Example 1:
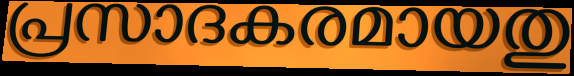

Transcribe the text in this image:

പ്രസാദകരമായതു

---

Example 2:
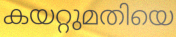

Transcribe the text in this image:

കയറ്റുമതിയെ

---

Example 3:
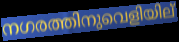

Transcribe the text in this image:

നഗരത്തിനുവെളിയില്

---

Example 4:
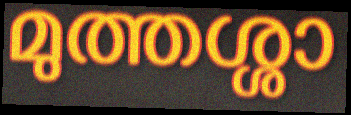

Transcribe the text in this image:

മുത്തശ്ശാ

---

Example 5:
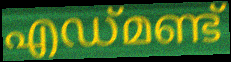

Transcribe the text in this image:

എഡ്മണ്ട്